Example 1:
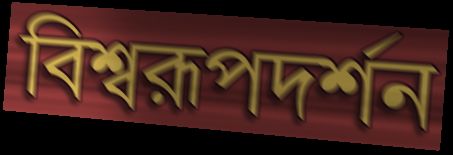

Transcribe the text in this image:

বিশ্বরূপদর্শন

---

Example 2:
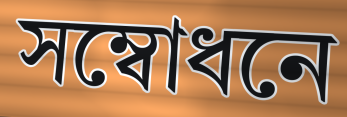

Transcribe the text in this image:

সম্বোধনে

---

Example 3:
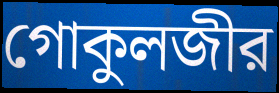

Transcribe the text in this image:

গোকুলজীর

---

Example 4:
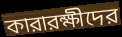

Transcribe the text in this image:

কারারক্ষীদের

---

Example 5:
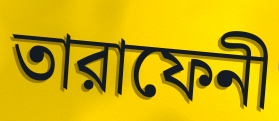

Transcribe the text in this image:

তারাফেনী